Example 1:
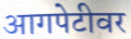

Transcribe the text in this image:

आगपेटीवर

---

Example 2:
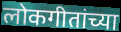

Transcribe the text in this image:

लोकगीतांच्या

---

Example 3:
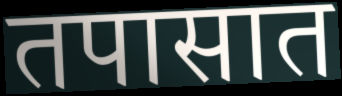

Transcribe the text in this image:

तपासात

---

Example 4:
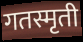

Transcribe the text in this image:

गतस्मृती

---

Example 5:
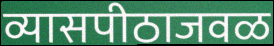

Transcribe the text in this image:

व्यासपीठाजवळ